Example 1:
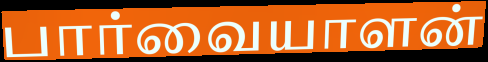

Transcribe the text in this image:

பார்வையாளன்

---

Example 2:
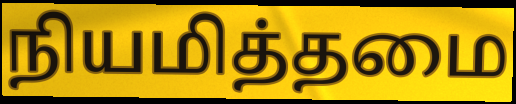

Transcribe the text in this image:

நியமித்தமை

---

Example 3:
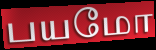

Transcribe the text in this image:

பயமோ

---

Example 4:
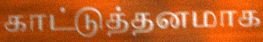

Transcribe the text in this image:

காட்டுத்தனமாக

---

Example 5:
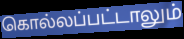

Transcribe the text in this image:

கொல்லப்பட்டாலும்